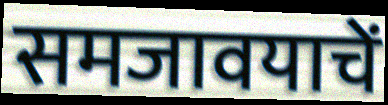
समजावयाचें